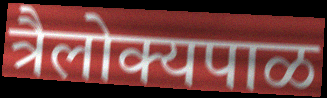
त्रैलोक्यपाळ